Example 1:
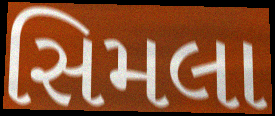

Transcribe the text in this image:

સિમલા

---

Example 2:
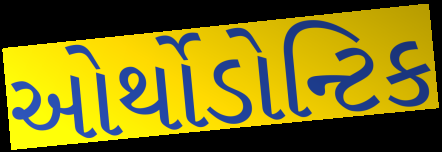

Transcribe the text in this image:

ઓર્થોડોન્ટિક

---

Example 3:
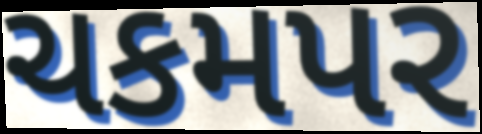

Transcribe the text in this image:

ચકમપર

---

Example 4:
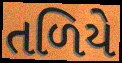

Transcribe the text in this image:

તળિયે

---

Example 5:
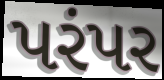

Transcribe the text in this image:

પરંપર